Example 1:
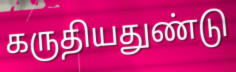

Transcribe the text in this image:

கருதியதுண்டு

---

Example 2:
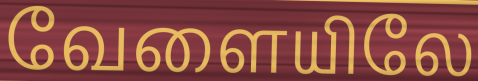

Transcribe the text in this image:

வேளையிலே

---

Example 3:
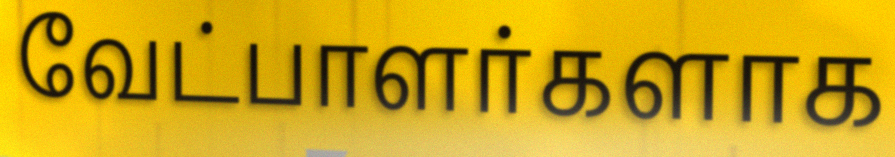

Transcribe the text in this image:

வேட்பாளர்களாக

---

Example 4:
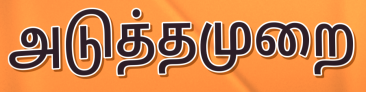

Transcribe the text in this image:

அடுத்தமுறை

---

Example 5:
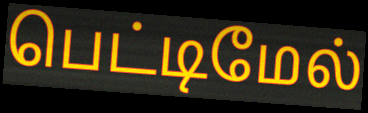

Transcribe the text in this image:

பெட்டிமேல்